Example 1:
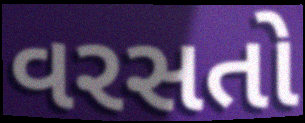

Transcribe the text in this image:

વરસતો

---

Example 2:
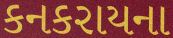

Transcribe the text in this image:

કનકરાયના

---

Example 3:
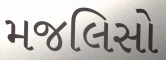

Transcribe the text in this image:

મજલિસો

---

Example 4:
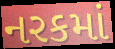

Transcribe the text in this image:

નરકમાં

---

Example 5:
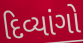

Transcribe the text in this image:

દિવ્યાંગો